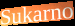
Sukarno